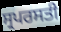
ਸ੍ਰਪਰਸਤੀ